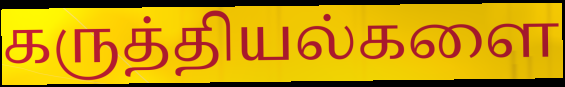
கருத்தியல்களை